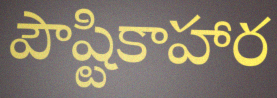
పౌష్టికాహార